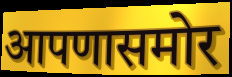
आपणासमोर